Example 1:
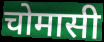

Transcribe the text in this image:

चोमासी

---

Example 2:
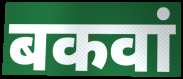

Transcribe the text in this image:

बकवां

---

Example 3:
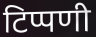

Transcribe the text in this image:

टिप्‍पणी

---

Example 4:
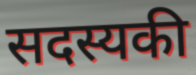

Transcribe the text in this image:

सदस्यकी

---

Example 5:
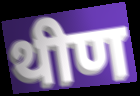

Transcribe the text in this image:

थीण